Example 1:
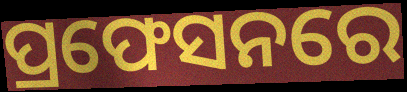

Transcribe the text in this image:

ପ୍ରଫେସନରେ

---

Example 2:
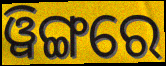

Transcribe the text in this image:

ୱିଙ୍ଗରେ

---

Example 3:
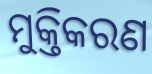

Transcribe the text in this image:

ମୁକ୍ତିକରଣ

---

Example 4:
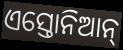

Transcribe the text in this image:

ଏସ୍ତୋନିଆନ୍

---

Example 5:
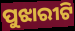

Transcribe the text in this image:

ପୁଝାରୀଟି